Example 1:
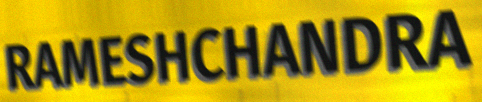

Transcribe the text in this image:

RAMESHCHANDRA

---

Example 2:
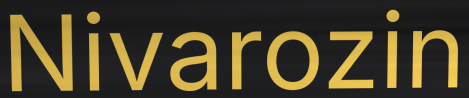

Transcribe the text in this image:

Nivarozin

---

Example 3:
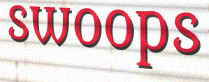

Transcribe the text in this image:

swoops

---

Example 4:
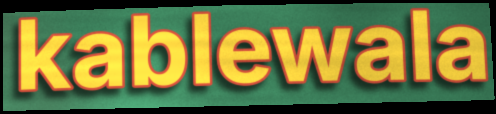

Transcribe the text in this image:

kablewala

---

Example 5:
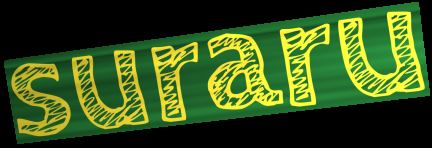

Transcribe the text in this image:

suraru